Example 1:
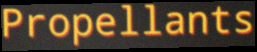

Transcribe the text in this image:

Propellants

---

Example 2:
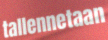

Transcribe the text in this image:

tallennetaan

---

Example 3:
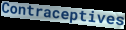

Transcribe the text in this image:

Contraceptives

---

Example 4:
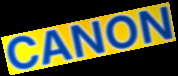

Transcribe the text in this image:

CANON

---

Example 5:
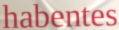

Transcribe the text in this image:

habentes